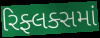
રિફ્લક્સમાં